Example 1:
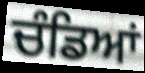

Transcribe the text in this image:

ਚੰਡਿਆਂ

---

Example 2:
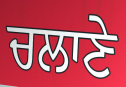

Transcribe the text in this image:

ਚਲਾਣੇ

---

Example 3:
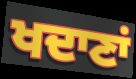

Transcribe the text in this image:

ਖਦਾਣਾਂ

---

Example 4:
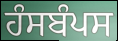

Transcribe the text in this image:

ਹੰਸਬੰਪਸ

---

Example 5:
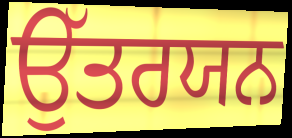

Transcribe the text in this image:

ਉੱਤਰਯਨ